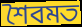
শৈবমত